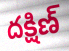
దక్షిణ్